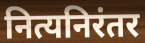
नित्यनिरंतर